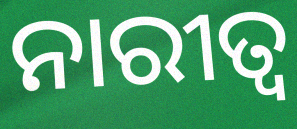
ନାରୀତ୍ୱ